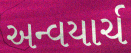
અન્વયાર્ચ